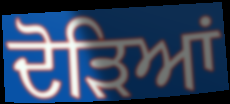
ਦੋੜਿਆਂ